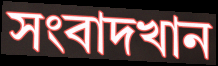
সংবাদখান